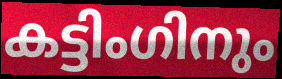
കട്ടിംഗിനും